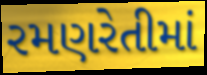
રમણરેતીમાં